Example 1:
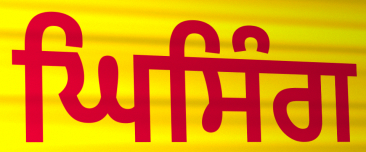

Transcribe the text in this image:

ਘਿਸਿੰਗ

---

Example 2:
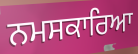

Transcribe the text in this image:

ਨਮਸਕਾਰਿਆ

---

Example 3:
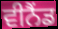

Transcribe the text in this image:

ਵੀਨੈਂਡ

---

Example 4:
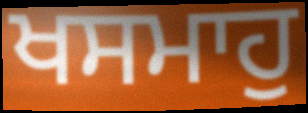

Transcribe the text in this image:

ਖਸਮਾਹੁ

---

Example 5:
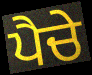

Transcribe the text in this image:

ਪੈਚੇ